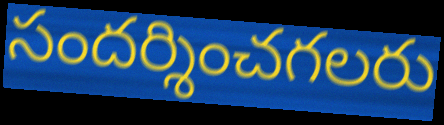
సందర్శించగలరు